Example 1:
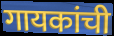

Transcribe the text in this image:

गायकांची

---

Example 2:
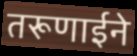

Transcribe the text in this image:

तरूणाईने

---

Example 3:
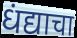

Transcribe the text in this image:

धंद्याचा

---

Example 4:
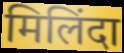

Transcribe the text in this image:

मिलिंदा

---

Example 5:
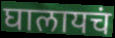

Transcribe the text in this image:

घालायचं